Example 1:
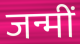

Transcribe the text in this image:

जन्मीं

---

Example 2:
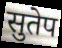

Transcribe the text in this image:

सुतेप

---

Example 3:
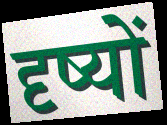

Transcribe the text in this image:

दृष्यों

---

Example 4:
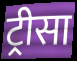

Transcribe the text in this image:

ट्रीसा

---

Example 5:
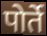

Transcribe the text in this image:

पोर्ते